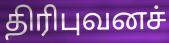
திரிபுவனச்